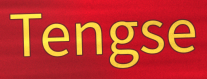
Tengse